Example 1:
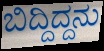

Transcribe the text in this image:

ಬಿದ್ದಿದ್ದನು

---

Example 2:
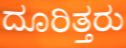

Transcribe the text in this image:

ದೂರಿತ್ತರು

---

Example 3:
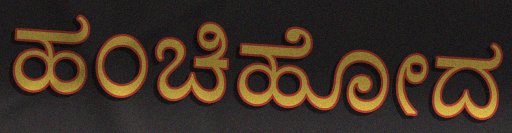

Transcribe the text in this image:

ಹಂಚಿಹೋದ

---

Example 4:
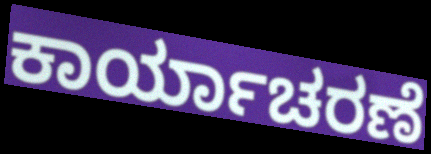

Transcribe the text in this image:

ಕಾರ್ಯಾಚರಣೆ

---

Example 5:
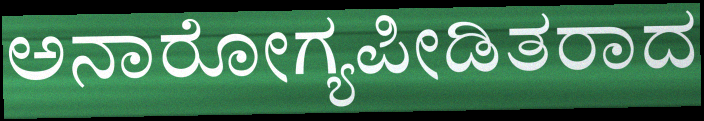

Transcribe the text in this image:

ಅನಾರೋಗ್ಯಪೀಡಿತರಾದ